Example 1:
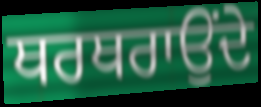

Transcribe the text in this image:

ਥਰਥਰਾਉਂਦੇ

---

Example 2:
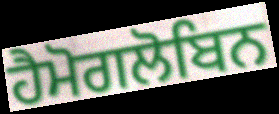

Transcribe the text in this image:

ਹੈਮੋਗਲੋਬਿਨ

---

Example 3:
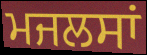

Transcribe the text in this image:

ਮਜਲਸਾਂ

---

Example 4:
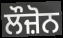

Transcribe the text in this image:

ਲੌਜ਼ੋਨ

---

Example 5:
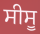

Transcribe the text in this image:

ਸੀਸੂ